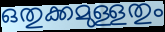
ഒതുക്കമുള്ളതും